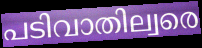
പടിവാതില്വരെ